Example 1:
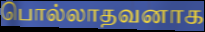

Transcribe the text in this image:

பொல்லாதவனாக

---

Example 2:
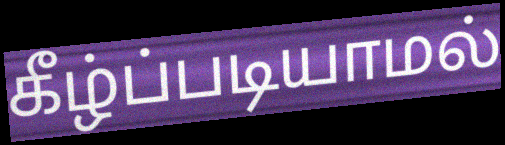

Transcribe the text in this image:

கீழ்ப்படியாமல்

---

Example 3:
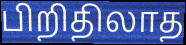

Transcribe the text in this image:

பிறிதிலாத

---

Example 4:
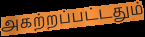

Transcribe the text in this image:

அகற்றப்பட்டதும்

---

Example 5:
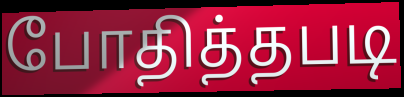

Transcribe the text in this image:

போதித்தபடி